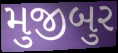
મુજીબુર